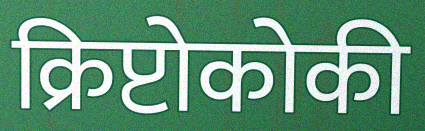
क्रिप्टोकोकी